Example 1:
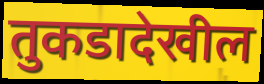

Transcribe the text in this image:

तुकडादेखील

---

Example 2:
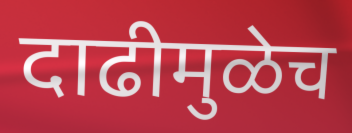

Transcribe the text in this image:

दाढीमुळेच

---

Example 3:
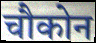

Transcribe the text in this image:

चौकोन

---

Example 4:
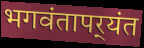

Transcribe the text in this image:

भगवंतापर्यंत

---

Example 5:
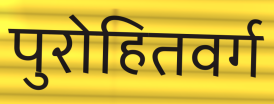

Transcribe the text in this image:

पुरोहितवर्ग